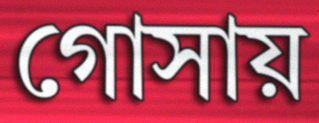
গোসায়